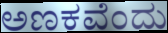
ಅಣಕವೆಂದು